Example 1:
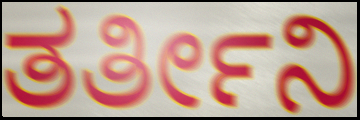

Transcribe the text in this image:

ತರ್ತೀನಿ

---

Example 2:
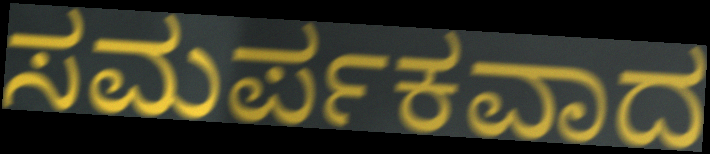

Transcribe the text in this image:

ಸಮರ್ಪಕವಾದ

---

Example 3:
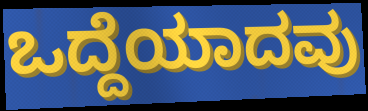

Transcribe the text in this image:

ಒದ್ದೆಯಾದವು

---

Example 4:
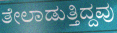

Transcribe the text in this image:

ತೇಲಾಡುತ್ತಿದ್ದವು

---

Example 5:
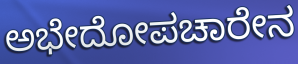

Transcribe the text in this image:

ಅಭೇದೋಪಚಾರೇನ